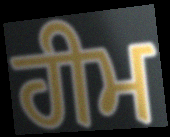
ਹੀਮ